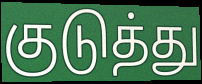
குடுத்து